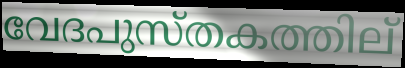
വേദപുസ്തകത്തില്